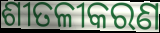
ଶୀତଳୀକରଣ